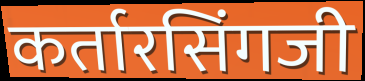
कर्तारसिंगजी